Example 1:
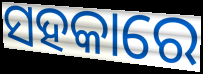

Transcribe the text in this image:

ସହକାରେ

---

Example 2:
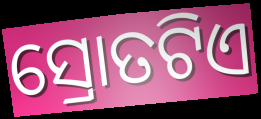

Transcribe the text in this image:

ସ୍ରୋତଟିଏ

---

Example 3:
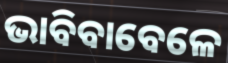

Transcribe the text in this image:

ଭାବିବାବେଳେ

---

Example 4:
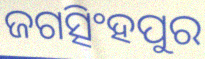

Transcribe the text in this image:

ଜଗତ୍ସିଂହପୁର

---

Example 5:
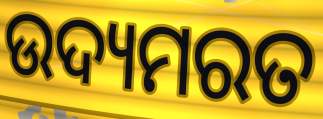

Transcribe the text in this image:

ଉଦ୍ୟମରତ